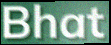
Bhat